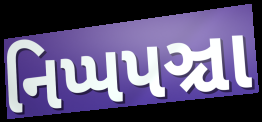
નિપ્પપઞ્ચા